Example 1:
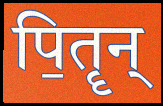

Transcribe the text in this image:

पि॒तॄन्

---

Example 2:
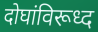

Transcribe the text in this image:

दोघांविरूध्द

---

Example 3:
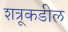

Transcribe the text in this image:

शत्रूकडील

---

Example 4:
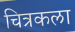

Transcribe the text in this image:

चित्रकला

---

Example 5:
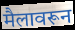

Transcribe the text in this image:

मैलावरून